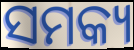
ସମକ୍ୟ